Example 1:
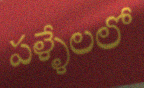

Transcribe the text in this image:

పళ్ళేలలో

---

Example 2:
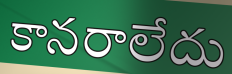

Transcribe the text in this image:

కానరాలేదు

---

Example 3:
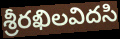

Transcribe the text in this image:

శ్రీరఖిలవిదసి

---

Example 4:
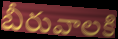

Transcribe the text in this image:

బీరువాలకి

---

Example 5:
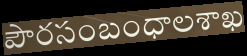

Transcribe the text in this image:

పౌరసంబంధాలశాఖ